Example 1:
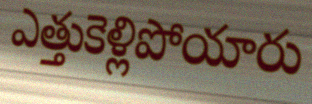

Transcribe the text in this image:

ఎత్తుకెళ్లిపోయారు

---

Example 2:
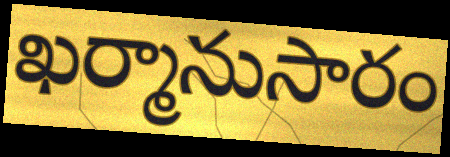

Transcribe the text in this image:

ఖర్మానుసారం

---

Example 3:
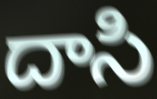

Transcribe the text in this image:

దాసి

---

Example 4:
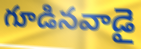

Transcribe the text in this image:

గూడినవాడై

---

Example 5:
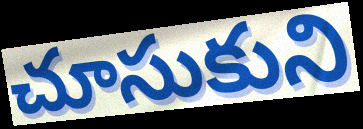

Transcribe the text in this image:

చూసుకుని